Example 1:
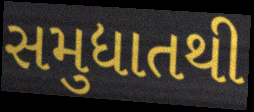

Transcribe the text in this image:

સમુદ્યાતથી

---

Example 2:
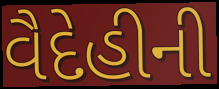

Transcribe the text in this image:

વૈદેહીની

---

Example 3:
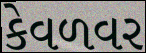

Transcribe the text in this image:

કેવળવર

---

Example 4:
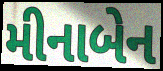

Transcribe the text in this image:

મીનાબેન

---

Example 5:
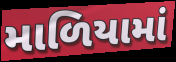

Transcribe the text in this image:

માળિયામાં